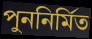
পুননির্মিত